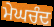
ਮੇਘਚੰਦ